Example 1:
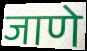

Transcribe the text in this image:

जाणे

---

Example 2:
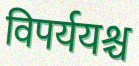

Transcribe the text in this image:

विपर्ययश्च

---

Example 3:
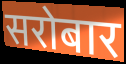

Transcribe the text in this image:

सरोबार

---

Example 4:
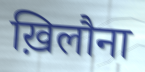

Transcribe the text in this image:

ख़िलौना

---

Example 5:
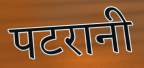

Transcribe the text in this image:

पटरानी